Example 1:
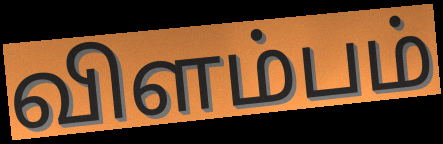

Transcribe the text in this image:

விளம்பம்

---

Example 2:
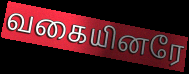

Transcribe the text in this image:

வகையினரே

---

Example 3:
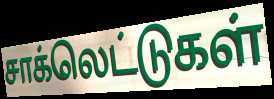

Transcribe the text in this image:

சாக்லெட்டுகள்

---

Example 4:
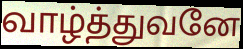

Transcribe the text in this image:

வாழ்த்துவனே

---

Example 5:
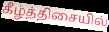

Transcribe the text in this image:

கீழ்த்திசையில்